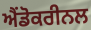
ਐਂਡੋਕਰੀਨਲ